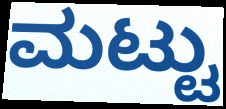
ಮಟ್ಟು